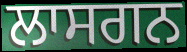
ਲਾਸਗਨ